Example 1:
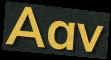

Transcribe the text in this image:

Aav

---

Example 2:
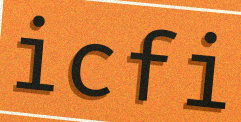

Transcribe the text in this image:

icfi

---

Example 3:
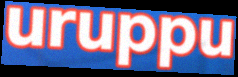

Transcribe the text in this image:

uruppu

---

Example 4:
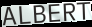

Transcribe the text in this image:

ALBERT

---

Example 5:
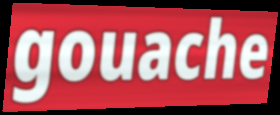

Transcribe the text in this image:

gouache